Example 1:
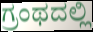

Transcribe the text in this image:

ಗ್ರಂಥದಲ್ಲಿ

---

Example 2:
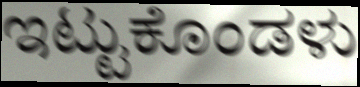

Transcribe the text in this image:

ಇಟ್ಟುಕೊಂಡಳು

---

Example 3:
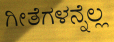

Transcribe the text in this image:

ಗೀತೆಗಳನ್ನೆಲ್ಲ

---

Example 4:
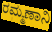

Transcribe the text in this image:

ರಮ್ಮಣಾನಿ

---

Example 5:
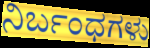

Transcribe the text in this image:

ನಿರ್ಬಂಧಗಳು